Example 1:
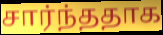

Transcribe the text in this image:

சார்ந்ததாக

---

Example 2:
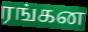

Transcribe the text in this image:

ரங்கன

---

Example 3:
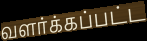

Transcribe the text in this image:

வளர்க்கப்பட்ட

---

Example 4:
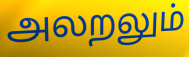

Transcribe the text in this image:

அலறலும்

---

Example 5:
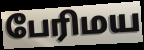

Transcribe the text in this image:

பேரிமய